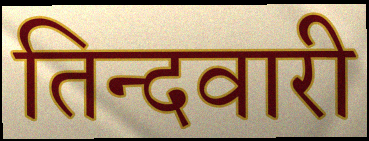
तिन्दवारी